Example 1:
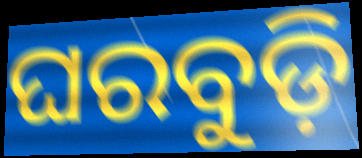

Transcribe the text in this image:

ଘରବୁଡ଼ି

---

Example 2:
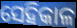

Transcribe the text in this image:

ସେହିକାଳ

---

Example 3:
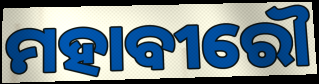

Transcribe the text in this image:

ମହାବୀରୌ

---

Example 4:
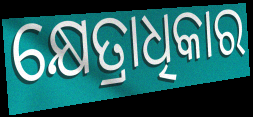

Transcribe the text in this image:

କ୍ଷେତ୍ରାଧିକାର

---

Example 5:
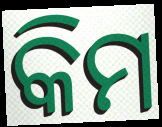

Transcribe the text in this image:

କିମ